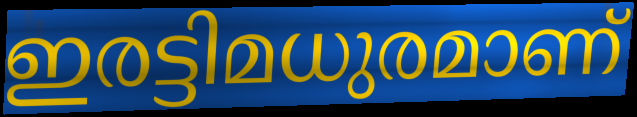
ഇരട്ടിമധുരമാണ്